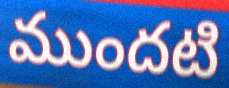
ముందటి